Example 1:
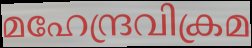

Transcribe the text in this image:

മഹേന്ദ്രവിക്രമ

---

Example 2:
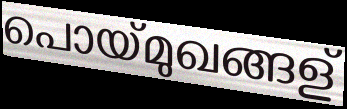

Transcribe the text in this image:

പൊയ്മുഖങ്ങള്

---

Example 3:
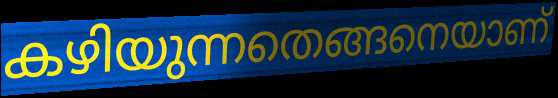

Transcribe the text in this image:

കഴിയുന്നതെങ്ങനെയാണ്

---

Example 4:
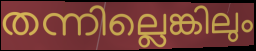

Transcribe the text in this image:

തന്നില്ലെങ്കിലും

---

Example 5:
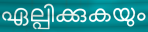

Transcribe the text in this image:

ഏല്പിക്കുകയും